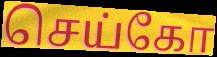
செய்கோ